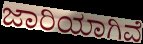
ಜಾರಿಯಾಗಿವೆ